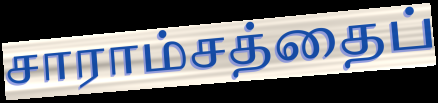
சாராம்சத்தைப்